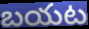
బయట